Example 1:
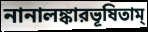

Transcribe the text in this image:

নানালঙ্কারভূষিতাম্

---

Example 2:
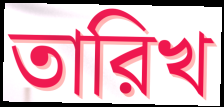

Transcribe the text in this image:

তারিখ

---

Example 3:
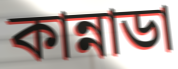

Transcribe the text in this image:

কান্নাডা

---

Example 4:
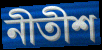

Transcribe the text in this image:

নীতীশ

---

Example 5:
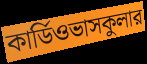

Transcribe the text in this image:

কার্ডিওভাসকুলার